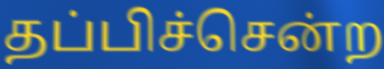
தப்பிச்சென்ற